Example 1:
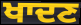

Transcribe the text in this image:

ਖਾਦਣ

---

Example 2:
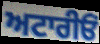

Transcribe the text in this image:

ਅਟਾਰੀਓਂ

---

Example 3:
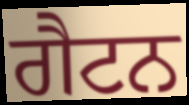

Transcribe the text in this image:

ਗੈਟਨ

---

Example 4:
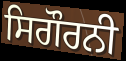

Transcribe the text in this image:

ਸਿਗੌਰਨੀ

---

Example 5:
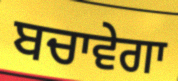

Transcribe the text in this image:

ਬਚਾਵੇਗਾ